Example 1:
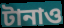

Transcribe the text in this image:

টানাও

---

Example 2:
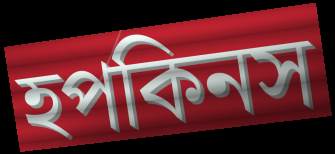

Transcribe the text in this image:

হপকিনস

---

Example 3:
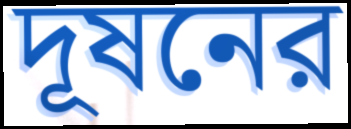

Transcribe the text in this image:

দূষনের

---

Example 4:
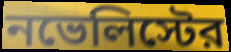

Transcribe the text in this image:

নভেলিস্টের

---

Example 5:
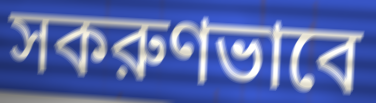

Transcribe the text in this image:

সকরুণভাবে